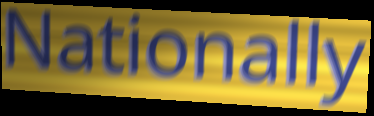
Nationally